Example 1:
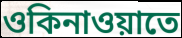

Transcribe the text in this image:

ওকিনাওয়াতে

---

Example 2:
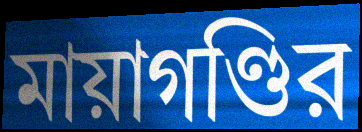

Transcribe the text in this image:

মায়াগণ্ডির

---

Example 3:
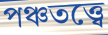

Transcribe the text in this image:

পঞ্চতত্ত্বে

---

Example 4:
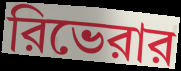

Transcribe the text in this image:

রিভেরার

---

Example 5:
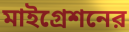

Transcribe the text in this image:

মাইগ্রেশনের